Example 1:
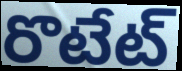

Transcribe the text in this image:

రొటేట్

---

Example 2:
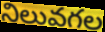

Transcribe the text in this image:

నిలువగల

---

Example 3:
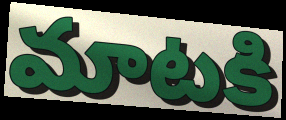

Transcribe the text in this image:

మాటకి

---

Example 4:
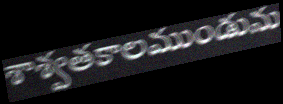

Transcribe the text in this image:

శాశ్వతకాలముండును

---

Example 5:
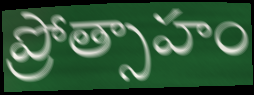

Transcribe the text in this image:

ప్రోత్సాహం